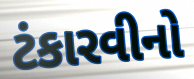
ટંકારવીનો